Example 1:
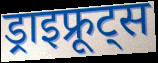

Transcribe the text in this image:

ड्राइफ्रूट्स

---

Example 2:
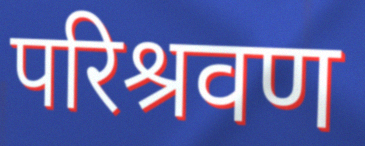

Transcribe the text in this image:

परिश्रवण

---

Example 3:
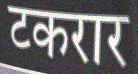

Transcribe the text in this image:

टकरार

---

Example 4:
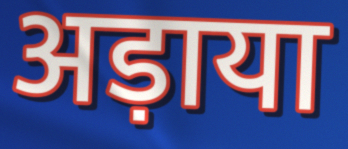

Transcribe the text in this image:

अड़ाया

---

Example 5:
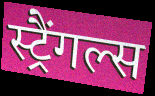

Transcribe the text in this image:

स्ट्रैंगल्स